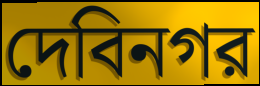
দেবিনগর